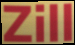
Zill